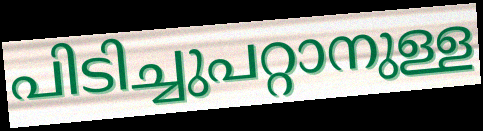
പിടിച്ചുപറ്റാനുള്ള